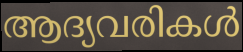
ആദ്യവരികൾ